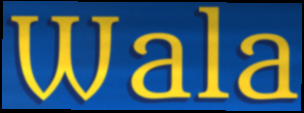
Wala